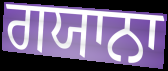
ਗਯਾਨਾ